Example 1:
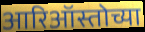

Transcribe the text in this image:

आरिऑस्तोच्या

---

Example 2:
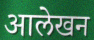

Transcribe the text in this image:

आलेखन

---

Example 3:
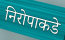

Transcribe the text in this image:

निरोपाकडे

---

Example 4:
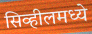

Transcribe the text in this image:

सिव्हीलमध्ये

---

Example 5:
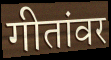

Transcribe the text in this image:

गीतांवर